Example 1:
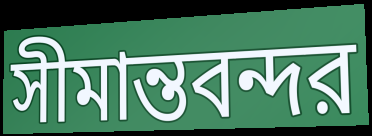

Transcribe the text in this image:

সীমান্তবন্দর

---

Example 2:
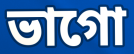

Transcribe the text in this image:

ভাগো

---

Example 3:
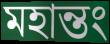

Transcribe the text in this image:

মহান্তং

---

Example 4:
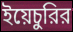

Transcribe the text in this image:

ইয়েচুরির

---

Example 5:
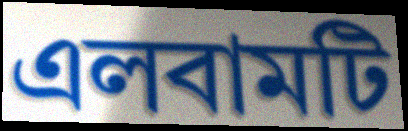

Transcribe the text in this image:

এলবামটি